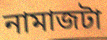
নামাজটা